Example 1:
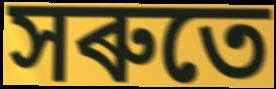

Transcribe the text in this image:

সৰুতে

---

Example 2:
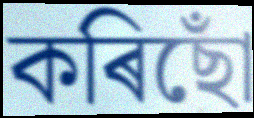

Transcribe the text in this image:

কৰিছোঁ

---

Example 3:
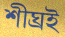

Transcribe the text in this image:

শীঘ্ৰই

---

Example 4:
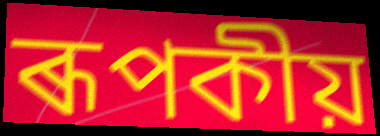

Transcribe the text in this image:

ৰূপকীয়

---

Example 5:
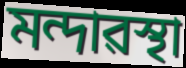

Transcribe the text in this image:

মন্দাৱস্থা